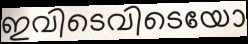
ഇവിടെവിടെയോ